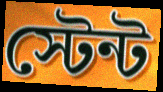
স্টেন্ট